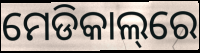
ମେଡିକାଲ୍‌ରେ